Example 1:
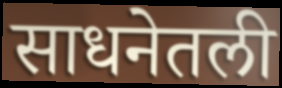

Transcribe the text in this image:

साधनेतली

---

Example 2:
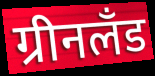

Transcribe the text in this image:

ग्रीनलँड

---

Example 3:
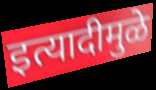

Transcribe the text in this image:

इत्यादीमुळे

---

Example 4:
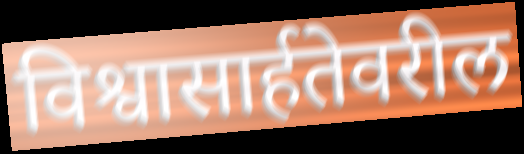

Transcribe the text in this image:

विश्वासार्हतेवरील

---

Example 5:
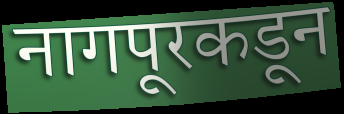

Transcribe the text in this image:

नागपूरकडून